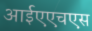
आईएएचएस